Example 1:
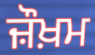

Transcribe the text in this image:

ਜ਼ੌਖ਼ਮ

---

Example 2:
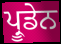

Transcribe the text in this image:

ਪ੍ਰੂਡੇਨ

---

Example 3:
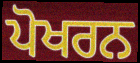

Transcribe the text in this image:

ਪੋਖਰਨ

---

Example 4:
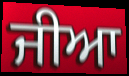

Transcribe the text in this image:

ਜੀਆ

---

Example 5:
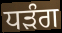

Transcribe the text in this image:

ਧੜੰਗ